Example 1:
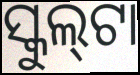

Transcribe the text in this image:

ସ୍କୁଲ୍‍ଟା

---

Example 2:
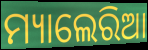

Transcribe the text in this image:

ମ୍ଯାଲେରିଆ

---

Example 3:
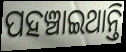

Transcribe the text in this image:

ପହଞ୍ଚାଇଥାନ୍ତି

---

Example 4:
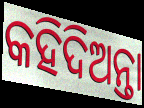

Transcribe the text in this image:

କହିଦିଅନ୍ତା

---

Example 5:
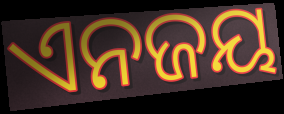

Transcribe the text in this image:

ଏନଜୟ